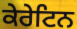
ਕੇਰੇਟਿਨ